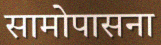
सामोपासना